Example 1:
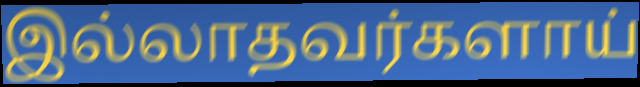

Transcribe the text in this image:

இல்லாதவர்களாய்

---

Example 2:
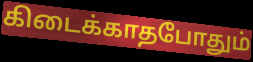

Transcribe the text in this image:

கிடைக்காதபோதும்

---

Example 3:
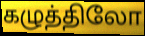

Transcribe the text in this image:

கழுத்திலோ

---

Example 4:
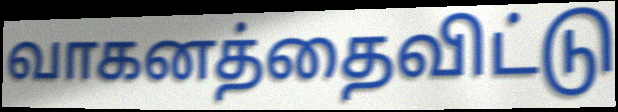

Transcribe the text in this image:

வாகனத்தைவிட்டு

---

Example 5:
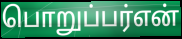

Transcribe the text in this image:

பொறுப்பர்என்